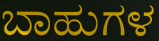
ಬಾಹುಗಳ